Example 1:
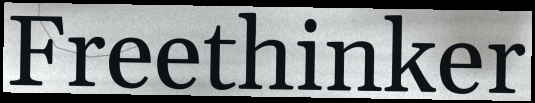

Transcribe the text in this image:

Freethinker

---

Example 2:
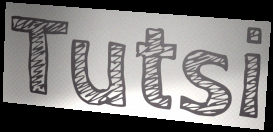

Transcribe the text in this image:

Tutsi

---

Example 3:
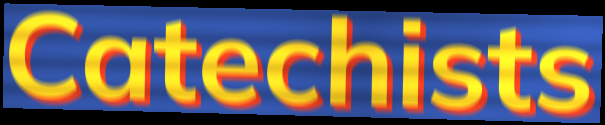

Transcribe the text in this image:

Catechists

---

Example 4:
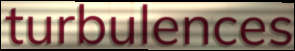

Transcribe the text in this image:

turbulences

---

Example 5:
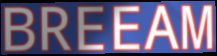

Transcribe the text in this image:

BREEAM